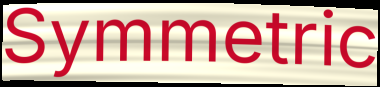
Symmetric